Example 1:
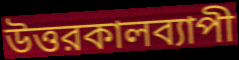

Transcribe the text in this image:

উত্তরকালব্যাপী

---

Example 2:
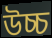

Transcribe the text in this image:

উচ্চ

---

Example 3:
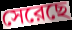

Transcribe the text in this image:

সেরেছে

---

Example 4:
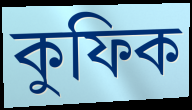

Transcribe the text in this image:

কুফিক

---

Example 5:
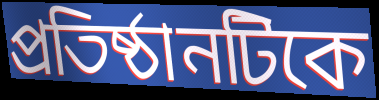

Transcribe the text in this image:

প্রতিষ্ঠানটিকে